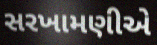
સરખામણીએ